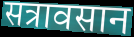
सत्रावसान